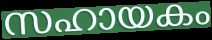
സഹായകം